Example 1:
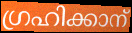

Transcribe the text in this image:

ഗ്രഹിക്കാന്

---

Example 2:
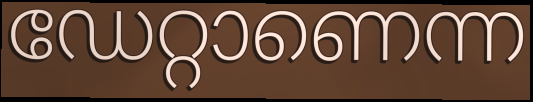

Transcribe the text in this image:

ഡേറ്റാണെന്ന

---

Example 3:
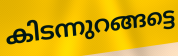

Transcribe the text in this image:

കിടന്നുറങ്ങട്ടെ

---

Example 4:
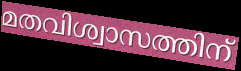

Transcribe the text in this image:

മതവിശ്വാസത്തിന്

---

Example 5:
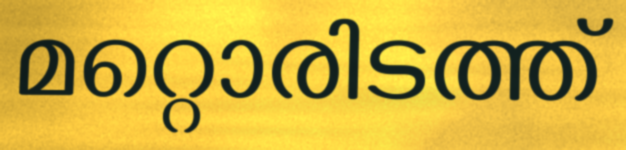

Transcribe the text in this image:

മറ്റൊരിടത്ത്